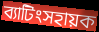
ব্যাটিংসহায়ক